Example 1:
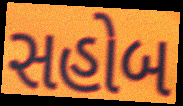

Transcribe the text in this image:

સહોબ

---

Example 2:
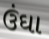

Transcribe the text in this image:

ઉંઘા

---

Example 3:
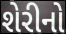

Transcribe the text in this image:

શેરીનો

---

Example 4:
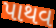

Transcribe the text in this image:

પાથવ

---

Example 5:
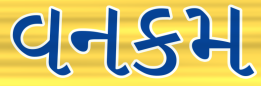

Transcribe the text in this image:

વનકમ